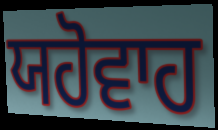
ਯਹੋਵਾਹ